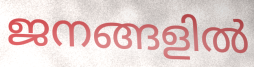
ജനങ്ങളിൽ